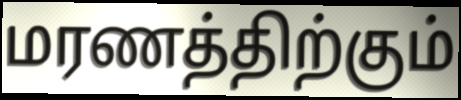
மரணத்திற்கும்